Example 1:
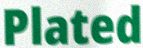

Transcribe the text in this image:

Plated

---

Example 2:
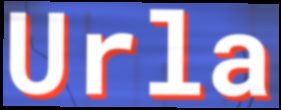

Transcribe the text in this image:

Urla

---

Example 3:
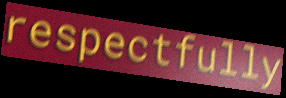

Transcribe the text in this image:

respectfully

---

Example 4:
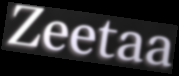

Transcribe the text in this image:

Zeetaa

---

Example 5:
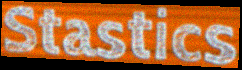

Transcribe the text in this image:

Stastics